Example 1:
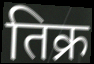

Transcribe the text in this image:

तिक्र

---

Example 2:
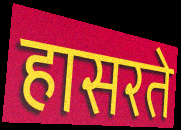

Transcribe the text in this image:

हासरते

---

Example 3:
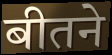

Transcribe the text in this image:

बीतने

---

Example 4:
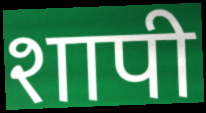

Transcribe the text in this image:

शापी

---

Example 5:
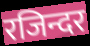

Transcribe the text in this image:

रजिन्दर